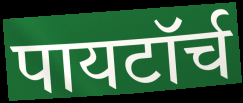
पायटॉर्च